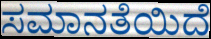
ಸಮಾನತೆಯಿದೆ